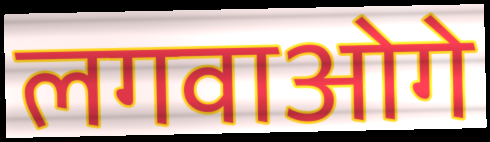
लगवाओगे